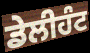
ਡੇਲੀਹੰਟ